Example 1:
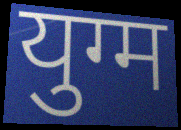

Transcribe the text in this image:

युग्म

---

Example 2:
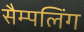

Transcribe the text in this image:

सैम्पलिंग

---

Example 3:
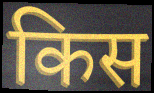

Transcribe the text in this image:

किस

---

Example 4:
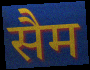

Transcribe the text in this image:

सैम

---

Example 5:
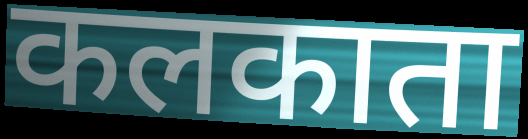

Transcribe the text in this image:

कलकाता